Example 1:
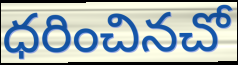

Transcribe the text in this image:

ధరించినచో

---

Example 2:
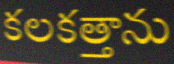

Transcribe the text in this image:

కలకత్తాను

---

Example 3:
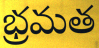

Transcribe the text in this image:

భ్రమత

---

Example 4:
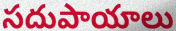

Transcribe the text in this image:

సదుపాయాలు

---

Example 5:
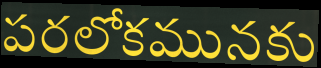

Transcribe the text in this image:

పరలోకమునకు